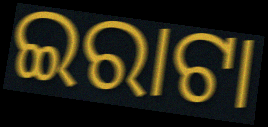
ଇରାଟା